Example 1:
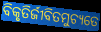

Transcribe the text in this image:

ବିକୃତିର୍ଜୀବିତମୁଚ୍ୟତେ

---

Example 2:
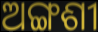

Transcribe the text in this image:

ଅଙ୍ଗଶୀ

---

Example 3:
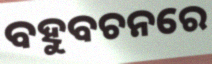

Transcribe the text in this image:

ବହୁବଚନରେ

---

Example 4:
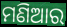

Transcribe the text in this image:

ମଣିଆର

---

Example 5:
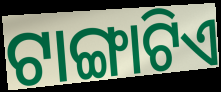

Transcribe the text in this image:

ଟାଙ୍ଗାଟିଏ